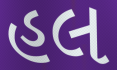
હલ